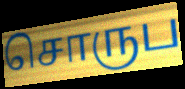
சொருப